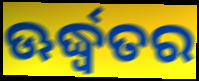
ଊର୍ଦ୍ଧ୍ଵତର